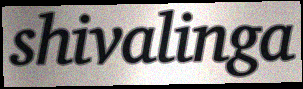
shivalinga